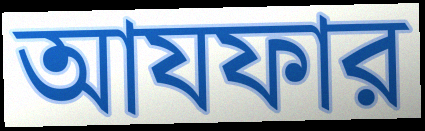
আযফার